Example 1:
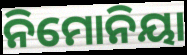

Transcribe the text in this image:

ନିମୋନିୟା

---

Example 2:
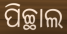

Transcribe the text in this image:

ପିଚ୍ଛାଲ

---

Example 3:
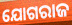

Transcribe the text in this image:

ଯୋଗରାଜ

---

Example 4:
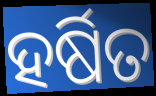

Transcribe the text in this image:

ହର୍ଷିତ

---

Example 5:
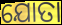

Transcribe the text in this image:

ଯୋତା